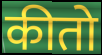
कीतो